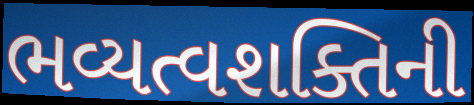
ભવ્યત્વશક્તિની